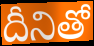
దీనితో